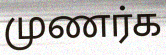
முணர்க